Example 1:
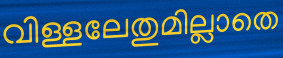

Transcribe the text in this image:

വിള്ളലേതുമില്ലാതെ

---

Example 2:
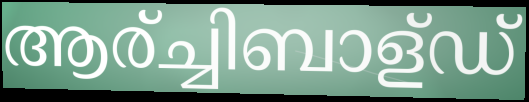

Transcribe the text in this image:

ആര്ച്ചിബാള്ഡ്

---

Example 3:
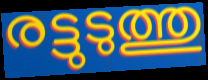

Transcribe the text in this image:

രട്ടുടുത്തു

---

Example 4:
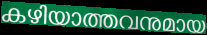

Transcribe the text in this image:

കഴിയാത്തവനുമായ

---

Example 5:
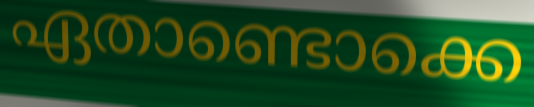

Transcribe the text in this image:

ഏതാണ്ടൊക്കെ